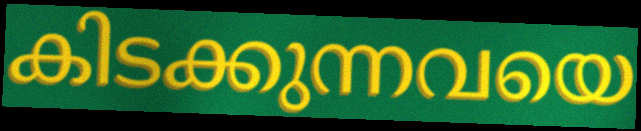
കിടക്കുന്നവയെ